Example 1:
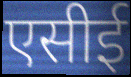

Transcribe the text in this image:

एसीई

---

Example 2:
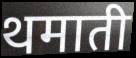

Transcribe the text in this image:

थमाती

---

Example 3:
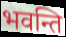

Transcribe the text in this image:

भवन्ति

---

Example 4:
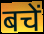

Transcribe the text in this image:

बचें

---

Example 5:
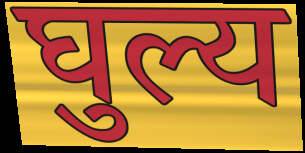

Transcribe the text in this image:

घुल्य